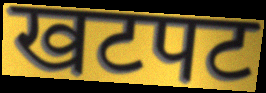
खटपट